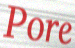
Pore